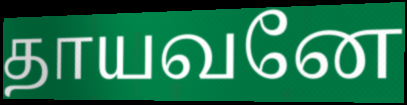
தாயவனே